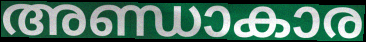
അണ്ഡാകാര